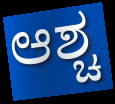
ಆಶ್ಚ